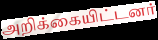
அறிக்கையிட்டனர்